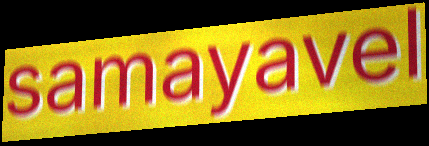
samayavel